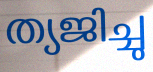
ത്യജിച്ചു